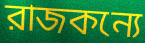
রাজকন্যে